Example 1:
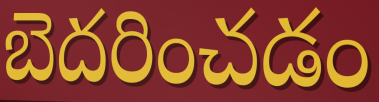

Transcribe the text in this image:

బెదరించడం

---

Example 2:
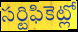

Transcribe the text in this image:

సర్టిఫికెట్లో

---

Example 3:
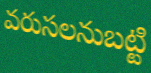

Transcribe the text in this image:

వరుసలనుబట్టి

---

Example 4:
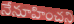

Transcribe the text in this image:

నేనూహించని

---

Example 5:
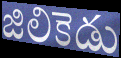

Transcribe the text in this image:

జిలికెడు